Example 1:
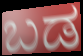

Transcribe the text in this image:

ಬಡ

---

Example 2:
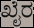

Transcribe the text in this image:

ಖೈರ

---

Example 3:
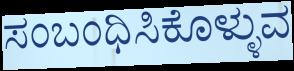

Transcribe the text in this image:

ಸಂಬಂಧಿಸಿಕೊಳ್ಳುವ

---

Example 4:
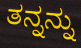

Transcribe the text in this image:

ತನ್ನನ್ನು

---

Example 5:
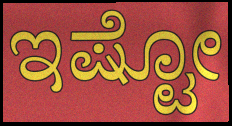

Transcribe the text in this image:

ಇಷ್ಟೋ